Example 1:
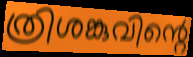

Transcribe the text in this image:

ത്രിശങ്കുവിന്റെ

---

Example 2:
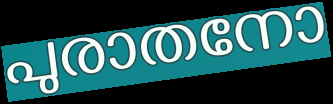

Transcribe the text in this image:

പുരാതനോ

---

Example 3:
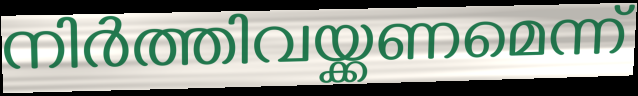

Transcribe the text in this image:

നിർത്തിവയ്ക്കണമെന്ന്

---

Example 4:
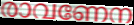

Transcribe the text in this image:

രാവണേന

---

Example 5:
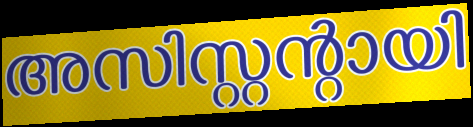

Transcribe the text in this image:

അസിസ്റ്റന്റായി